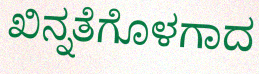
ಖಿನ್ನತೆಗೊಳಗಾದ